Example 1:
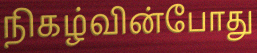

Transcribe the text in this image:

நிகழ்வின்போது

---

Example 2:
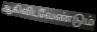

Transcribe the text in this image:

ஆகிவிடவேண்டும்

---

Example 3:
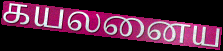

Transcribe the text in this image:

கயலனைய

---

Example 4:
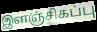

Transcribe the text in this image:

இளஞ்சிகப்பு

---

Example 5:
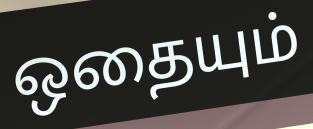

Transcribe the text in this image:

ஒதையும்